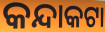
କନ୍ଦାକଟା